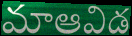
మాఆవిడ